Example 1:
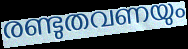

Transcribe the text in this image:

രണ്ടുതവണയും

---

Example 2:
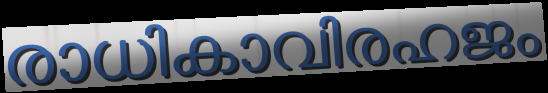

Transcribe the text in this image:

രാധികാവിരഹജം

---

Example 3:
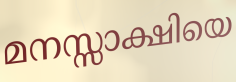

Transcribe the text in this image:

മനസ്സാക്ഷിയെ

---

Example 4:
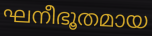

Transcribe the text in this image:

ഘനീഭൂതമായ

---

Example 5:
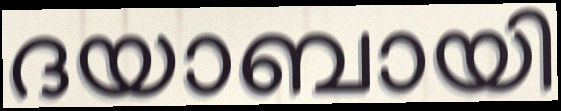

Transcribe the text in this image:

ദയാബായി